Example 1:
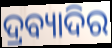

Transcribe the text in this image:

ଦ୍ରବ୍ୟାଦିର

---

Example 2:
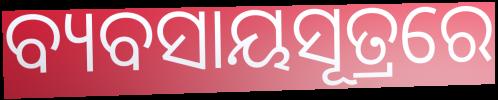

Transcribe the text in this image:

ବ୍ୟବସାୟସୂତ୍ରରେ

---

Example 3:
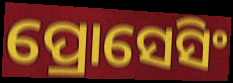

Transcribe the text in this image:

ପ୍ରୋସେସିଂ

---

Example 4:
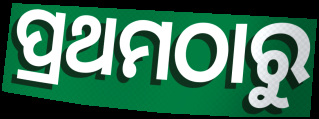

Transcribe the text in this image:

ପ୍ରଥମଠାରୁ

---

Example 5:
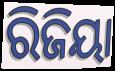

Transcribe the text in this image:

ରିଜିୟା